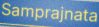
Samprajnata